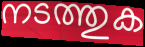
നടത്തുക